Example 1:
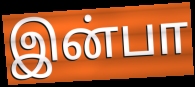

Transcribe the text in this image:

இன்பா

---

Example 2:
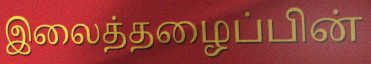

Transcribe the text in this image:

இலைத்தழைப்பின்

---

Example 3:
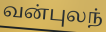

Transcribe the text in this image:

வன்புலந்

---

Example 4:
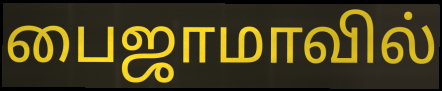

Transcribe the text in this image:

பைஜாமாவில்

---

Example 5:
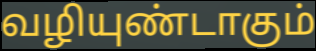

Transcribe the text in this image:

வழியுண்டாகும்